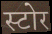
स्टोर